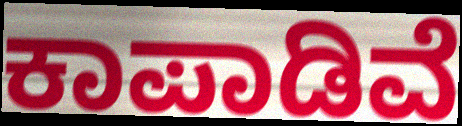
ಕಾಪಾಡಿವೆ